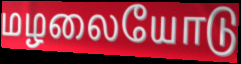
மழலையோடு